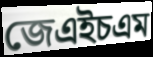
জেএইচএম